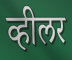
व्हीलर